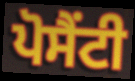
ਪੋਸੈਂਟੀ